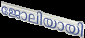
ജോലിയായി